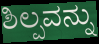
ಶಿಲ್ಪವನ್ನು